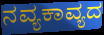
ನವ್ಯಕಾವ್ಯದ